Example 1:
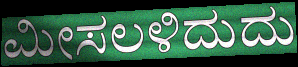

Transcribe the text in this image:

ಮೀಸಲಳಿದುದು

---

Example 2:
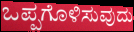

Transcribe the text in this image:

ಒಪ್ಪಗೊಳಿಸುವುದು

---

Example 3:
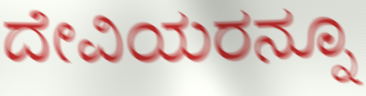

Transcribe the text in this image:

ದೇವಿಯರನ್ನೂ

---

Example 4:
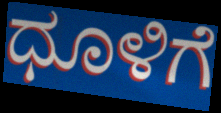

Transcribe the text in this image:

ಧೂಳಿಗೆ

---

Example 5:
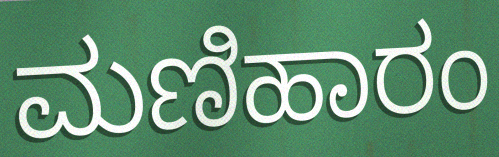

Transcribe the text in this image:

ಮಣಿಹಾರಂ